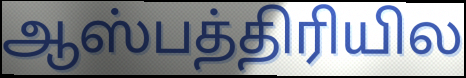
ஆஸ்பத்திரியில